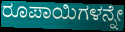
ರೂಪಾಯಿಗಳನ್ನೇ